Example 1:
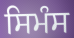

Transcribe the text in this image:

ਸਿਮੰਸ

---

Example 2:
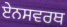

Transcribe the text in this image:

ਏਨਸਵਰਥ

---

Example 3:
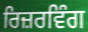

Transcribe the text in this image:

ਰਿਜ਼ਰਵਿੰਗ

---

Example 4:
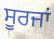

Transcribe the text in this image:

ਸੂਰਜਾਂ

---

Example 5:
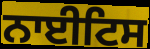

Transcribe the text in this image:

ਨਾਈਟਿਸ